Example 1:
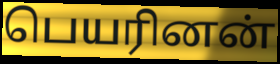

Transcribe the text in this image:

பெயரினன்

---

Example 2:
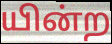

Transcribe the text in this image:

யின்ற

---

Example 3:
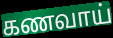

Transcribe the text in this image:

கணவாய்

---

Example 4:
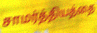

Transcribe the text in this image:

சாமர்த்தியத்தை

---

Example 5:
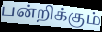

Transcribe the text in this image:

பன்றிக்கும்